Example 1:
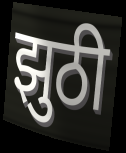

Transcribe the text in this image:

झुठी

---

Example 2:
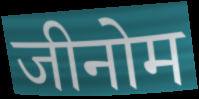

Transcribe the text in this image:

जीनोम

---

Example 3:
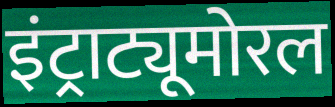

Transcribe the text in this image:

इंट्राट्यूमोरल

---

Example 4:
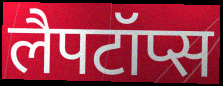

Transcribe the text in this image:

लैपटॉप्‍स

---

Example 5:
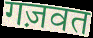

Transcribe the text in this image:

गज़वत